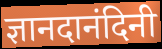
ज्ञानदानंदिनी